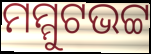
ମମ୍ମୁଟଭଟ୍ଟ